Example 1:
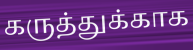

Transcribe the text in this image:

கருத்துக்காக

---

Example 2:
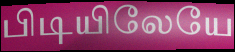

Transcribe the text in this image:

பிடியிலேயே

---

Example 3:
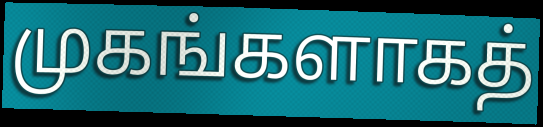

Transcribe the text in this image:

முகங்களாகத்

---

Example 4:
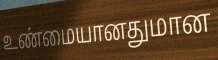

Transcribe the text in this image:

உண்மையானதுமான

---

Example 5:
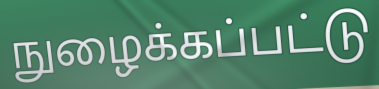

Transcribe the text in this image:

நுழைக்கப்பட்டு